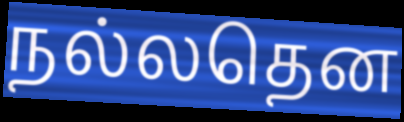
நல்லதென